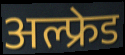
अल्फ्रेड